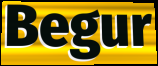
Begur